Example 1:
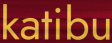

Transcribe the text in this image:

katibu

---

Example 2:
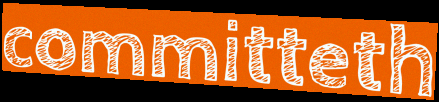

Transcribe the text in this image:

committeth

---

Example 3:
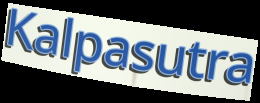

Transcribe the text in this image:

Kalpasutra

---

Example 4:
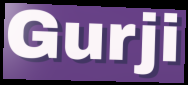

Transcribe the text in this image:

Gurji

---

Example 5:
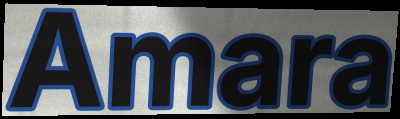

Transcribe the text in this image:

Amara